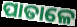
ପାତାଳେ